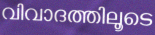
വിവാദത്തിലൂടെ